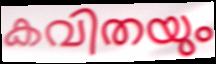
കവിതയും